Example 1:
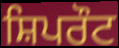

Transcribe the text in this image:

ਸ਼ਿਪਰੌਟ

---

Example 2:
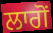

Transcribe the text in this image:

ਲਾਗੋਂ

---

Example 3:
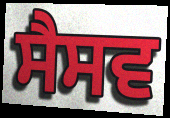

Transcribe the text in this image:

ਸੈਸਵ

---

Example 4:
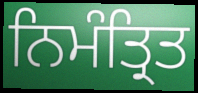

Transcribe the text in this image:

ਨਿਮੰਤ੍ਰਿਤ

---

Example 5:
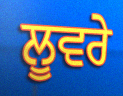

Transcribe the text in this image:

ਲੂਵਰੇ